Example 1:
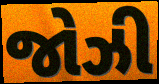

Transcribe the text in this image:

જોઝી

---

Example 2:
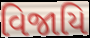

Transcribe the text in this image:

વિજાયિ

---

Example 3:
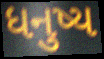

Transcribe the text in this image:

ધનુષ્ય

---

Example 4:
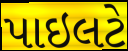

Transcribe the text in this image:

પાઇલટે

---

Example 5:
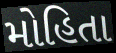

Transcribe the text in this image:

મોહિતા